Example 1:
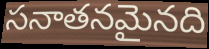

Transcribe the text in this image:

సనాతనమైనది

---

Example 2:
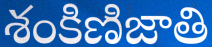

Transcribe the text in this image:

శంకిణిజాతి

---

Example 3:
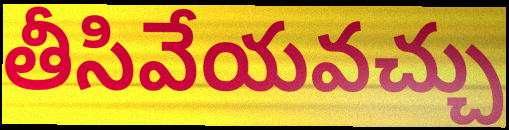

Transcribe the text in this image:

తీసివేయవచ్చు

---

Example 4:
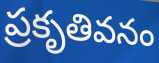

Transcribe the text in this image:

ప్రకృతివనం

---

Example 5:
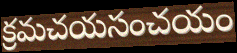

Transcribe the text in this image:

క్రమచయసంచయం